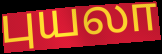
புயலா